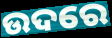
ଉଦରେ